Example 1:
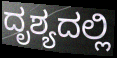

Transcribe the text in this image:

ದೃಶ್ಯದಲ್ಲಿ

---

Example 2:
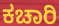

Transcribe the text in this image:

ಕಚಾರಿ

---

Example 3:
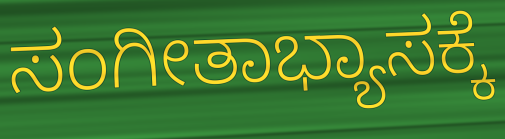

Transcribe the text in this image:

ಸಂಗೀತಾಭ್ಯಾಸಕ್ಕೆ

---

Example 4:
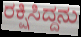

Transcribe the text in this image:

ರಕ್ಷಿಸಿದ್ದನು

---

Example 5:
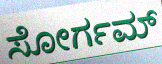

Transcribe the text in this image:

ಸೋರ್ಗಮ್